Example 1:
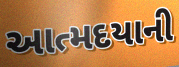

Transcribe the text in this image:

આત્મદયાની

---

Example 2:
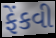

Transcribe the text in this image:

ફેંકવી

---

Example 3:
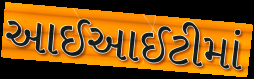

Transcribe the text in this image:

આઈઆઈટીમાં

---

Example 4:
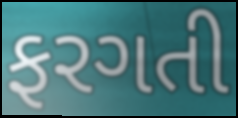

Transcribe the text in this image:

ફરગતી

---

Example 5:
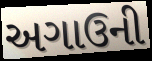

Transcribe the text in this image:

અગાઉની